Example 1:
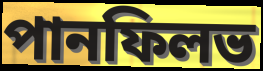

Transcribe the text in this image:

পানফিলভ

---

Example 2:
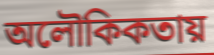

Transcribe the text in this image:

অলৌকিকতায়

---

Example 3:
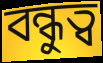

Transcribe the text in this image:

বন্ধুত্ব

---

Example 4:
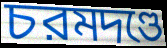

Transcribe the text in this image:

চরমদণ্ডে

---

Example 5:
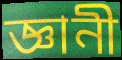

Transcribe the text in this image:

জ্ঞানী